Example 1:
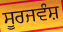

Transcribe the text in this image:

ਸੂਰਜਵੰਸ਼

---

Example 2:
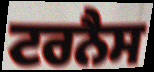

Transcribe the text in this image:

ਟਰਨੈਸ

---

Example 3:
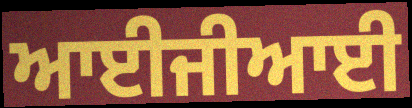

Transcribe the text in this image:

ਆਈਜੀਆਈ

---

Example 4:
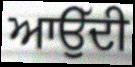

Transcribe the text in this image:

ਆਉੱਦੀ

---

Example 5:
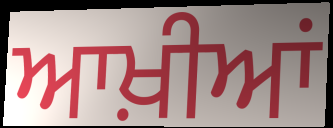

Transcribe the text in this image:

ਆਖ਼ੀਆਂ